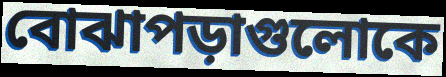
বোঝাপড়াগুলোকে